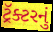
ટ્રૅક્ટરનું